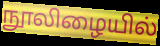
நூலிழையில்